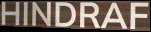
HINDRAF